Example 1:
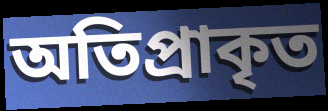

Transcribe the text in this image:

অতিপ্ৰাকৃত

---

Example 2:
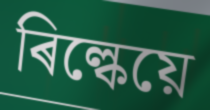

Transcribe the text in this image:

ৰিল্কেয়ে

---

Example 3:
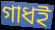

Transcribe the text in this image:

গাধই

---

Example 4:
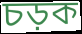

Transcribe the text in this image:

চড়ক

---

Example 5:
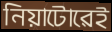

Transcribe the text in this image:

নিয়াটোৱেই